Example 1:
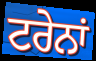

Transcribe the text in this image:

ਟਰੇਨਾਂ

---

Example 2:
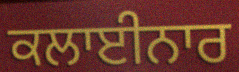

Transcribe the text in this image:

ਕਲਾਈਨਾਰ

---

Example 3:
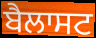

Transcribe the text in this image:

ਬੈਲਾਸਟ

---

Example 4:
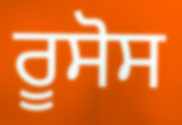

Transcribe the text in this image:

ਰੂਸੋਸ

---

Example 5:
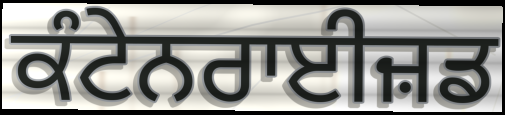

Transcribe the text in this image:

ਕੰਟੇਨਰਾਈਜ਼ਡ